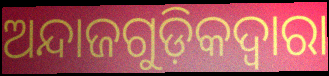
ଅନ୍ଦାଜଗୁଡ଼ିକଦ୍ୱାରା